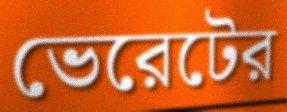
ভেরেটের